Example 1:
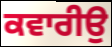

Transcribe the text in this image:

ਕਵਾਰੀਉ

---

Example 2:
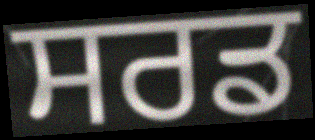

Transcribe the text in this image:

ਸਰਡ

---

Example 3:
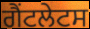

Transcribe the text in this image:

ਗੈਂਟਲੇਟਸ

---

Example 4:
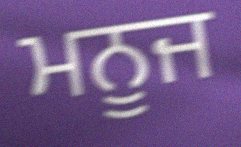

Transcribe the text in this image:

ਮਨੂਜ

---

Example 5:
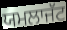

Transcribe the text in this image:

ਯਮਲਾਜੱਟ